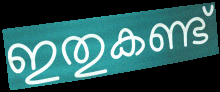
ഇതുകണ്ട്